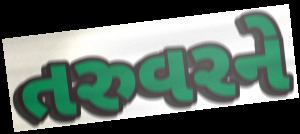
તરુવરને